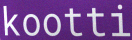
kootti